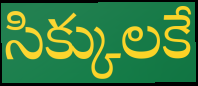
సిక్కులకే